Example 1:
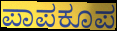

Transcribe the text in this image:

ಪಾಪಕೂಪ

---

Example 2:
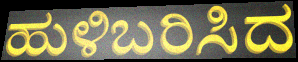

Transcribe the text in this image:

ಹುಳಿಬರಿಸಿದ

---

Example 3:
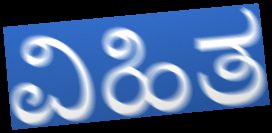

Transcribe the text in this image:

ವಿಹಿತ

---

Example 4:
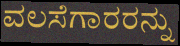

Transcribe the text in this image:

ವಲಸೆಗಾರರನ್ನು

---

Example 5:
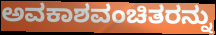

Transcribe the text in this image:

ಅವಕಾಶವಂಚಿತರನ್ನು